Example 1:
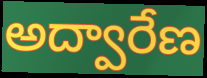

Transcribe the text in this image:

అద్వారేణ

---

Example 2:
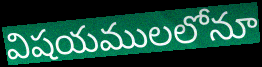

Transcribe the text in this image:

విషయములలోనూ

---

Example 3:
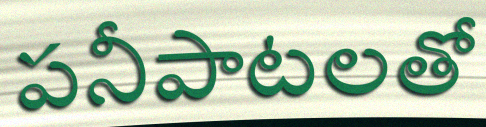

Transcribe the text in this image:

పనీపాటలతో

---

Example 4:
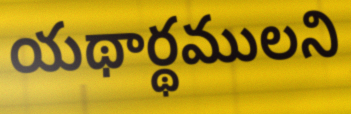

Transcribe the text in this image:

యథార్థములని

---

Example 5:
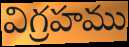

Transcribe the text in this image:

విగ్రహము